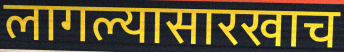
लागल्यासारखाच